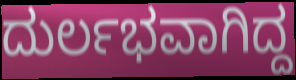
ದುರ್ಲಭವಾಗಿದ್ದ